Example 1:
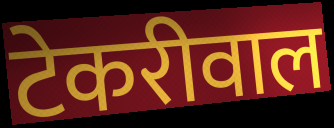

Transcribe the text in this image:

टेकरीवाल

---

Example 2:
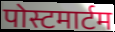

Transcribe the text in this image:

पोस्टमार्टम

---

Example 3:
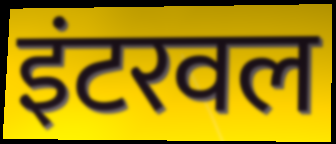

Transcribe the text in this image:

इंटरवल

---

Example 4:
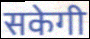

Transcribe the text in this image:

सकेगी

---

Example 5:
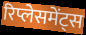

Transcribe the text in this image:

रिप्लेसमेंट्स